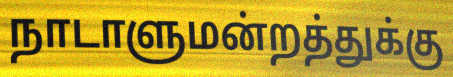
நாடாளுமன்றத்துக்கு